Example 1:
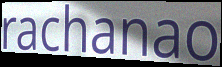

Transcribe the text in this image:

rachanao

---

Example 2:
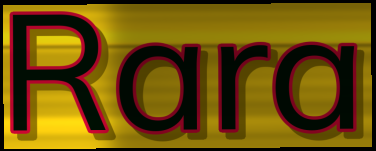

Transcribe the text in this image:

Rara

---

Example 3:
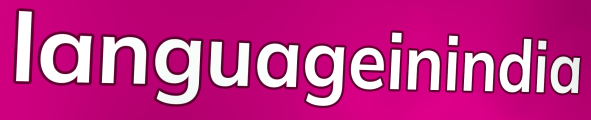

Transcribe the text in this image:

languageinindia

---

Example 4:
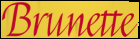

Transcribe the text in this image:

Brunette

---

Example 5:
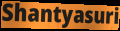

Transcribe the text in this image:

Shantyasuri